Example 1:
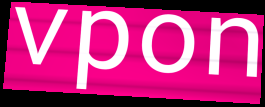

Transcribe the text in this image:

vpon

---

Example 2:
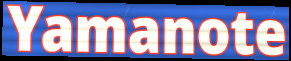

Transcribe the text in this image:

Yamanote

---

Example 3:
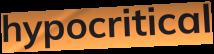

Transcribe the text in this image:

hypocritical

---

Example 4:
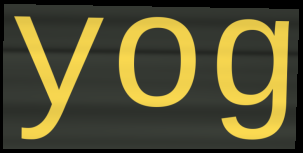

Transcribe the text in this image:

yog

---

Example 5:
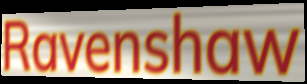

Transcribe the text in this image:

Ravenshaw